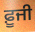
ਫ਼ੂਜੀ